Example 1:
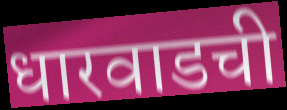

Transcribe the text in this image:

धारवाडची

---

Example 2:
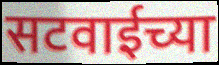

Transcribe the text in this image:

सटवाईच्या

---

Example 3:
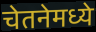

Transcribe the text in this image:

चेतनेमध्ये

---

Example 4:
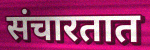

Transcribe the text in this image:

संचारतात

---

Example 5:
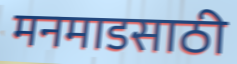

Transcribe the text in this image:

मनमाडसाठी